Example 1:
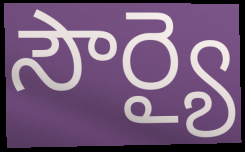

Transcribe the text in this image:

సౌర్యై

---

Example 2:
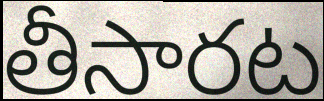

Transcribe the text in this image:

తీసారట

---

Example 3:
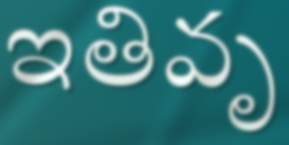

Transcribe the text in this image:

ఇతివృ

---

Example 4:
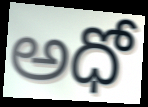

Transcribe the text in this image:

అధో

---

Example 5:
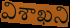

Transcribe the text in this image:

విశాఖని